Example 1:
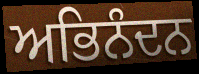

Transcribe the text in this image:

ਅਭਿਨੰਦਨ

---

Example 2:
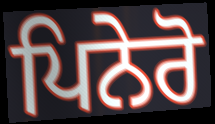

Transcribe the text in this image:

ਪਿਨੇਰੋ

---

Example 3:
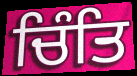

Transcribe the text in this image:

ਚਿੰਤਿ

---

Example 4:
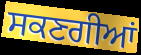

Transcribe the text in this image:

ਸਕਣਗੀਆਂ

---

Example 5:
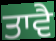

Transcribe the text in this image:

ਤਾਵੈ